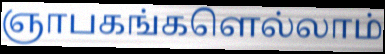
ஞாபகங்களெல்லாம்